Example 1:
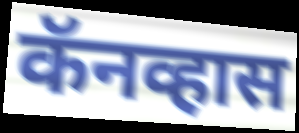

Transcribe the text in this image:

कॅनव्हास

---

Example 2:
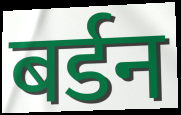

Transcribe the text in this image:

बर्डन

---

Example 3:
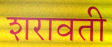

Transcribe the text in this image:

शरावती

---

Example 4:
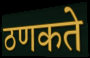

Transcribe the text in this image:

ठणकते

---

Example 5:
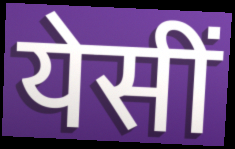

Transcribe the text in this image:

येसीं